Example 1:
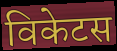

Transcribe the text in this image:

विकेटस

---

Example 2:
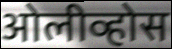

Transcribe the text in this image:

ओलीव्होस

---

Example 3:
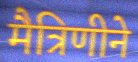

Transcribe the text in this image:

मैत्रिणीने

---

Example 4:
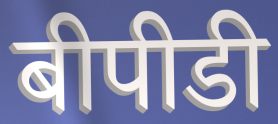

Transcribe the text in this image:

बीपीडी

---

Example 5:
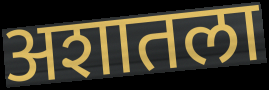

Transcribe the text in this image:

अशातला